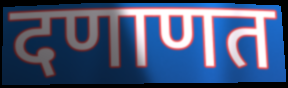
दणाणत